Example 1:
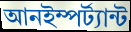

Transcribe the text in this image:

আনইম্পর্ট্যান্ট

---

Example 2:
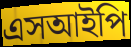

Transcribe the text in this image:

এসআইপি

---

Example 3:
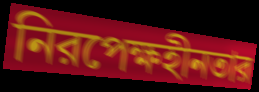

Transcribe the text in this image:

নিরপেক্ষহীনতার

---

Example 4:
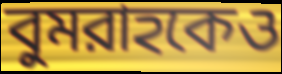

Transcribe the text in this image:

বুমরাহকেও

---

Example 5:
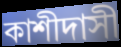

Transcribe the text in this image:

কাশীদাসী